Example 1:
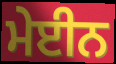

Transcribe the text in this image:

ਮੇਈਨ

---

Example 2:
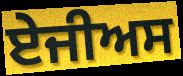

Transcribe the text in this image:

ਏਜੀਅਸ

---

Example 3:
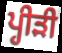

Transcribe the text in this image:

ਪ੍ਹੀੜੀ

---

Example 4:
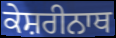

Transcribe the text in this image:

ਕੇਸ਼ਰੀਨਾਥ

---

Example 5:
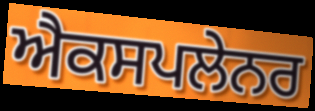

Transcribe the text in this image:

ਐਕਸਪਲੇਨਰ